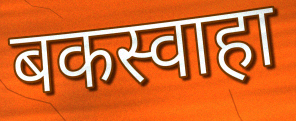
बकस्वाहा